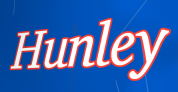
Hunley